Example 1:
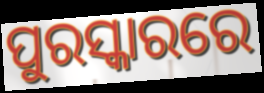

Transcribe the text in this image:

ପୁରସ୍କାରରେ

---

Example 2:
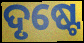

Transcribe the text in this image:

ଦୃଷ୍ଟେ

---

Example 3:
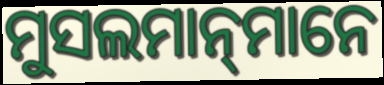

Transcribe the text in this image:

ମୁସଲମାନ୍‌ମାନେ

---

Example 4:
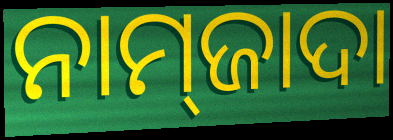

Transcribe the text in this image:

ନାମ୍‍ଜାଦା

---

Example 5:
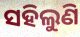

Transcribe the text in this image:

ସହିଲୁଣି